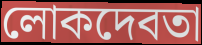
লোকদেবতা